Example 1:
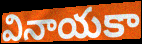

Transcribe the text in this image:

వినాయకా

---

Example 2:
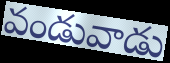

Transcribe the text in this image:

వండువాడు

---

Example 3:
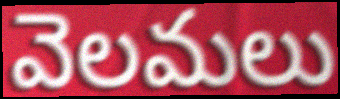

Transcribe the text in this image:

వెలమలు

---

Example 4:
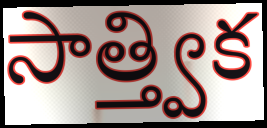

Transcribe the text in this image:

సాత్త్విక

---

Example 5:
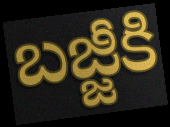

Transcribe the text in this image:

బజ్జీకి